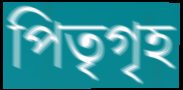
পিতৃগৃহ